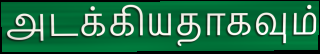
அடக்கியதாகவும்